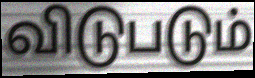
விடுபடும்